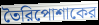
তৈরিপোশাকের